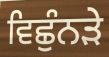
ਵਿਛੁੰਨੜੇ